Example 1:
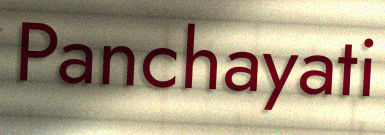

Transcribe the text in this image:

Panchayati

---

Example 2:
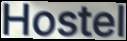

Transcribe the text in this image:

Hostel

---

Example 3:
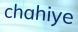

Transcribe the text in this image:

chahiye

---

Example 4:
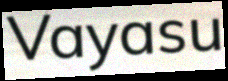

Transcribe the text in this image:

Vayasu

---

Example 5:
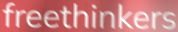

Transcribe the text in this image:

freethinkers